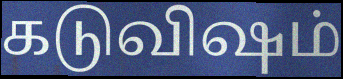
கடுவிஷம்